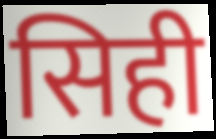
सिही